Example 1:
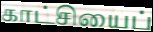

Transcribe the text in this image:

காட்சியைப்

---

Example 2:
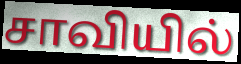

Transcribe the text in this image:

சாவியில்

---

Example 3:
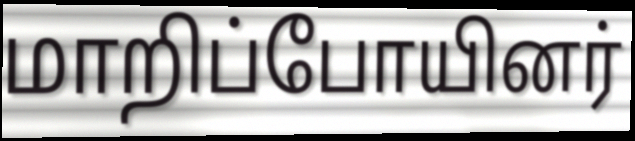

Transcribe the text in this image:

மாறிப்போயினர்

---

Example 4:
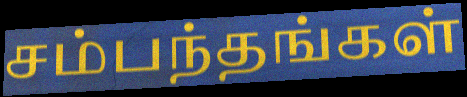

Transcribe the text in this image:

சம்பந்தங்கள்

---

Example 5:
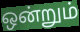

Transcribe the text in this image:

ஒன்றும்